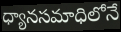
ధ్యానసమాధిలోనే